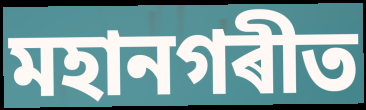
মহানগৰীত